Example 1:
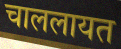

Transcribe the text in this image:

चाललायत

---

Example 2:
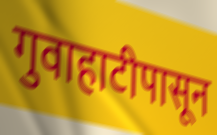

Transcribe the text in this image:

गुवाहाटीपासून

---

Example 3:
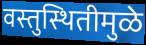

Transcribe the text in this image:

वस्तुस्थितीमुळे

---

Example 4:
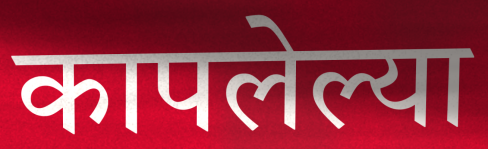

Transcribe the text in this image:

कापलेल्या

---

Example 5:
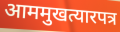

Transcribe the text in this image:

आममुखत्यारपत्र